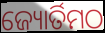
ଜ୍ୟୋର୍ତିମଠ